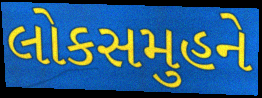
લોકસમુહને